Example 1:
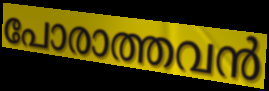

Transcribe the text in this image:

പോരാത്തവൻ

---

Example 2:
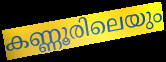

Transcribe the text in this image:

കണ്ണൂരിലെയും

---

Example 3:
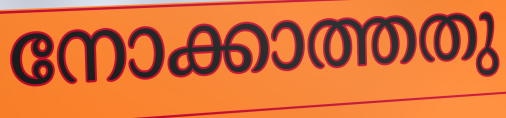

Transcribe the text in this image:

നോക്കാത്തതു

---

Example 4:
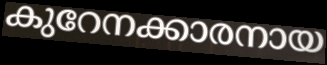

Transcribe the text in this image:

കുറേനക്കാരനായ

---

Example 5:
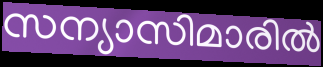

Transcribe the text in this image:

സന്യാസിമാരിൽ